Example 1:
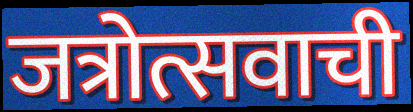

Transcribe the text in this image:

जत्रोत्सवाची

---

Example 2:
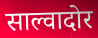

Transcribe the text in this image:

साल्वादोर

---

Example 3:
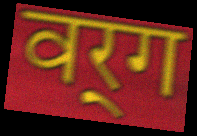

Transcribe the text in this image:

वर्ग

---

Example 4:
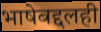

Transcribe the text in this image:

भाषेबद्दलही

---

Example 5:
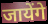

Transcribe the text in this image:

जायेंगे